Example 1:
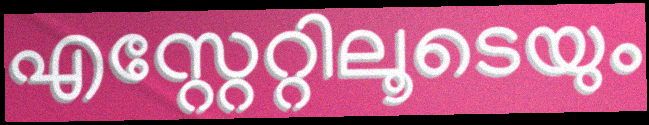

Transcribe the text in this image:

എസ്റ്റേറ്റിലൂടെയും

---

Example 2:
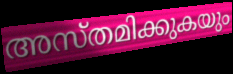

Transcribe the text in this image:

അസ്തമിക്കുകയും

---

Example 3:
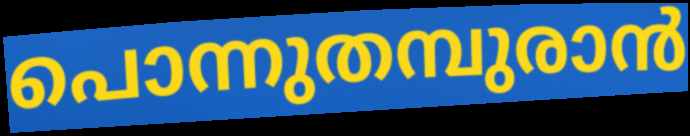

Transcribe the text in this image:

പൊന്നുതമ്പുരാൻ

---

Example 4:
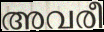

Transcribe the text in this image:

അവരീ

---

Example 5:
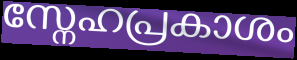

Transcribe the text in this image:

സ്നേഹപ്രകാശം